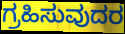
ಗ್ರಹಿಸುವುದರ